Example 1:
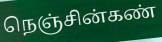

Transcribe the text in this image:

நெஞ்சின்கண்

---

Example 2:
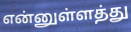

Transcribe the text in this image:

என்னுள்ளத்து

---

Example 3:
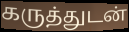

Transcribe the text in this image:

கருத்துடன்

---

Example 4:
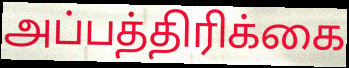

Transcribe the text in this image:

அப்பத்திரிக்கை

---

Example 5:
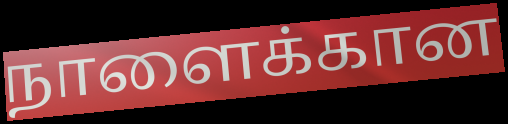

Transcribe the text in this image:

நாளைக்கான